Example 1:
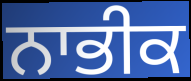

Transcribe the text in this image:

ਨਾਭੀਕ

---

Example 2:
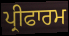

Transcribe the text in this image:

ਪ੍ਰੀਫਾਰਮ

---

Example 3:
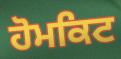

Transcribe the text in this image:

ਹੋਮਕਿਟ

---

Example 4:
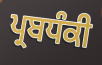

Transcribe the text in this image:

ਪ੍ਰਬਧੰਕੀ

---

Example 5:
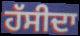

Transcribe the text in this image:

ਹੱਸੀਦਾ